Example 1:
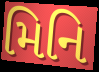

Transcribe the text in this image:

મિનિ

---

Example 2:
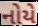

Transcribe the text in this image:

નોયે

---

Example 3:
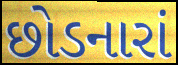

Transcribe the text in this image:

છોડનારાં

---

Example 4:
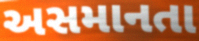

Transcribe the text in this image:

અસમાનતા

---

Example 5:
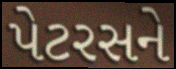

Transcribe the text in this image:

પેટરસને